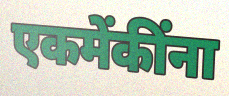
एकमेंकींना